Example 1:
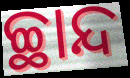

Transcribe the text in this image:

ଚ୍ଛାନ୍ଦ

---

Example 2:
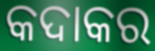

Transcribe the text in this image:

କଦାକର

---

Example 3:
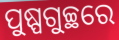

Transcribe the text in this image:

ପୁଷ୍ପଗୁଚ୍ଛରେ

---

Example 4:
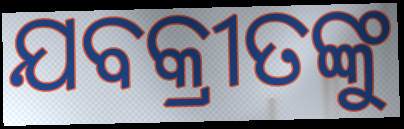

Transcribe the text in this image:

ଯବକ୍ରୀତଙ୍କୁ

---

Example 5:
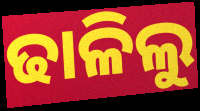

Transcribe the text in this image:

ଢାଳିଲୁ